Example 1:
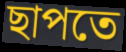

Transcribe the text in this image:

ছাপতে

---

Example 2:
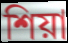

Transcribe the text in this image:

শিয়া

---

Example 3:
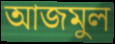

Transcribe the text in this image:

আজমুল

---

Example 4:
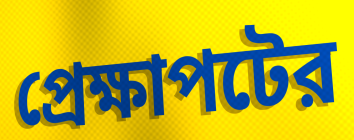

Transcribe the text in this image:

প্রেক্ষাপটের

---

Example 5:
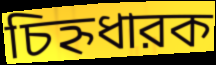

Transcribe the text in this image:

চিহ্নধারক